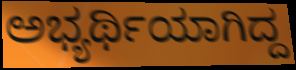
ಅಭ್ಯರ್ಥಿಯಾಗಿದ್ದ